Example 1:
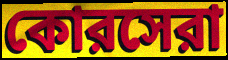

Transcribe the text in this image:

কোরসেরা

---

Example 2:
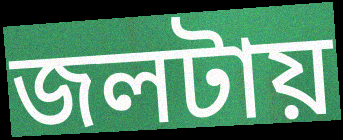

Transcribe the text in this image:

জলটায়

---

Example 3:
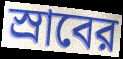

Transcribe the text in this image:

স্রাবের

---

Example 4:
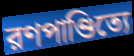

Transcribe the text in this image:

রণপাণ্ডিত্যে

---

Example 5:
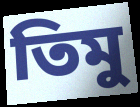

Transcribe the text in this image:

তিমু